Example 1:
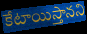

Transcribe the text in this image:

కేటాయిస్తానని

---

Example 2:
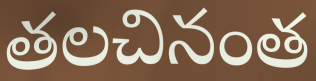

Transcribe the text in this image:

తలచినంత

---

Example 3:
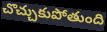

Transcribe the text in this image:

చొచ్చుకుపోతుంది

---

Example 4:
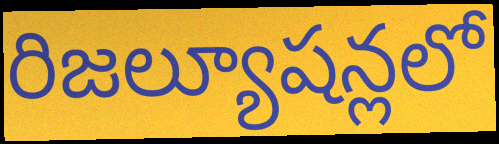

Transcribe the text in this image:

రిజల్యూషన్లలో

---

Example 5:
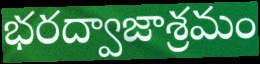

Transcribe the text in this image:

భరద్వాజాశ్రమం